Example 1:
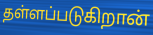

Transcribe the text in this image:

தள்ளப்படுகிறான்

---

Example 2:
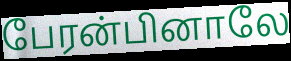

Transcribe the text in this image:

பேரன்பினாலே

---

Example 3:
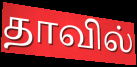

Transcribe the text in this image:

தாவில்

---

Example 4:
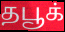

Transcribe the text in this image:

தபூக்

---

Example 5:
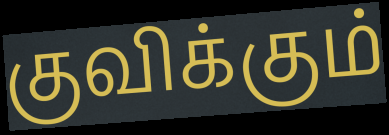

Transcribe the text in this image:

குவிக்கும்